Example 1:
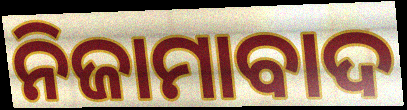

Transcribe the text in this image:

ନିଜାମାବାଦ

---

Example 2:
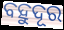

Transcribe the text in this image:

ବହୁଦୂର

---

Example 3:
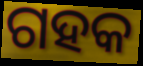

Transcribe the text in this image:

ଗହକ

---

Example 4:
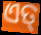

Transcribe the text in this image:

ଏତ୍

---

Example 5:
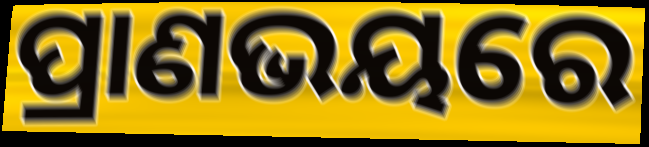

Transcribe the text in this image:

ପ୍ରାଣଭୟରେ